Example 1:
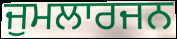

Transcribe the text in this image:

ਜੁਮਲਾਰਜਨ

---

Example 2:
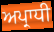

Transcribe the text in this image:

ਅਪ੍ਰਾਧੀ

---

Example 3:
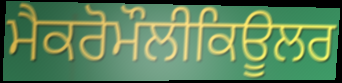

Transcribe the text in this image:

ਮੈਕਰੋਮੌਲੀਕਿਊਲਰ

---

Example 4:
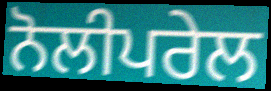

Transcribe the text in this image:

ਨੋਲੀਪਰੇਲ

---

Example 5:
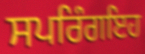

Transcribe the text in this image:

ਸਪਰਿੰਗਇਹ